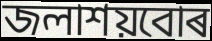
জলাশয়বোৰ